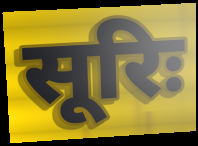
सूरिः